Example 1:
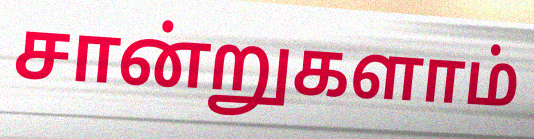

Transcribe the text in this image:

சான்றுகளாம்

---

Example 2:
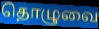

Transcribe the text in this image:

தொழுவை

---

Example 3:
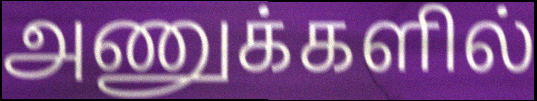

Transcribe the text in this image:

அணுக்களில்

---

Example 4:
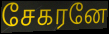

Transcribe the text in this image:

சேகரனே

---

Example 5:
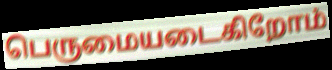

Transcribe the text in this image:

பெருமையடைகிறோம்